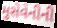
મુસેવેનીની